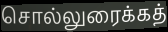
சொல்லுரைக்கத்